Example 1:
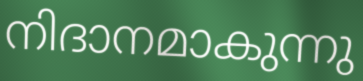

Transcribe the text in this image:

നിദാനമാകുന്നു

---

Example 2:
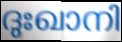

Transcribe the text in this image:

ദുഃഖാനി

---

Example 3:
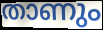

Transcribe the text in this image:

താണും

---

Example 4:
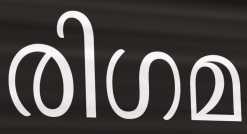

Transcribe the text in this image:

രിഗമ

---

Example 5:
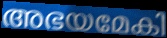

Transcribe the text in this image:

അഭയമേകി